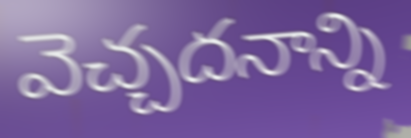
వెచ్చదనాన్ని